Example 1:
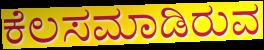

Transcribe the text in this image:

ಕೆಲಸಮಾಡಿರುವ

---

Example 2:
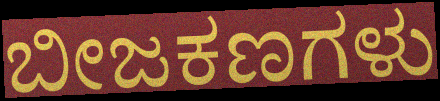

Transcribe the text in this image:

ಬೀಜಕಣಗಳು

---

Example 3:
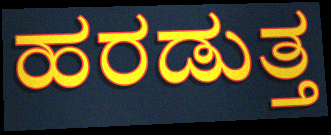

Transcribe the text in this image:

ಹರಡುತ್ತ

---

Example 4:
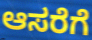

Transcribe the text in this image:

ಆಸರೆಗೆ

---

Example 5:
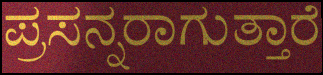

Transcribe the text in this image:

ಪ್ರಸನ್ನರಾಗುತ್ತಾರೆ